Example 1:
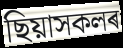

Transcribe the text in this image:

ছিয়াসকলৰ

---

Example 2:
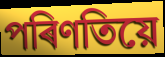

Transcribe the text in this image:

পৰিণতিয়ে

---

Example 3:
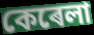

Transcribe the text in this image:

কেৰেলা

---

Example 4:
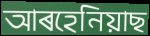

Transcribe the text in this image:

আৰহেনিয়াছ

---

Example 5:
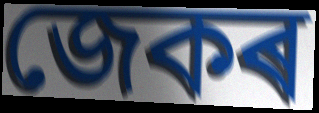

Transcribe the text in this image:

জেকৰ